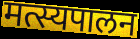
मत्स्यपालन